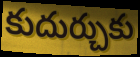
కుదుర్చుకు